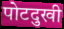
पोटदुखी